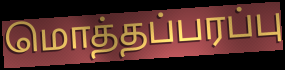
மொத்தப்பரப்பு